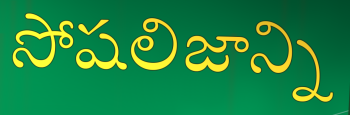
సోషలిజాన్ని